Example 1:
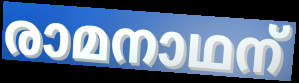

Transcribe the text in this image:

രാമനാഥന്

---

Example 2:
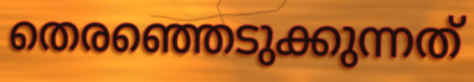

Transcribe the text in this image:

തെരഞ്ഞെടുക്കുന്നത്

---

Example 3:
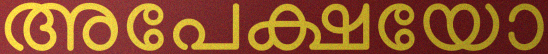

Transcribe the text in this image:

അപേക്ഷയോ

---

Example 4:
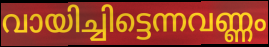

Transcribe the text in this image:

വായിച്ചിട്ടെന്നവണ്ണം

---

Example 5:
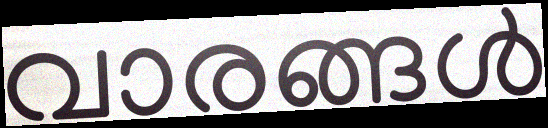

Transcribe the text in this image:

വാരങ്ങൾ